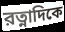
রত্নাদিকে